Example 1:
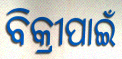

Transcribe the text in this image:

ବିକ୍ରୀପାଇଁ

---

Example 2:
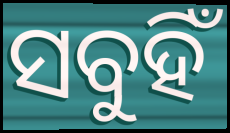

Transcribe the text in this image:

ସବୁହିଁ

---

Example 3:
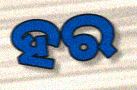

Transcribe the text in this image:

ହର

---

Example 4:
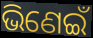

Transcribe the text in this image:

ଭିଣେଇଁ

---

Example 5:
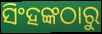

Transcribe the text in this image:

ସିଂହଙ୍କଠାରୁ